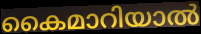
കൈമാറിയാൽ